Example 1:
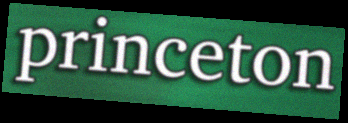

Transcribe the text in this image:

princeton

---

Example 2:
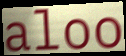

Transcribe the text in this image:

aloo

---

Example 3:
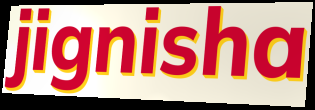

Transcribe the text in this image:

jignisha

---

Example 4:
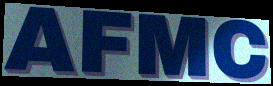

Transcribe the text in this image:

AFMC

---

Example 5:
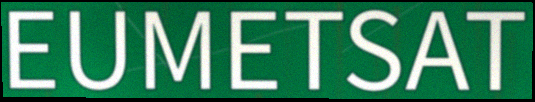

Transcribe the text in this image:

EUMETSAT